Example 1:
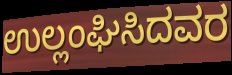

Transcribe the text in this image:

ಉಲ್ಲಂಘಿಸಿದವರ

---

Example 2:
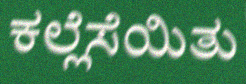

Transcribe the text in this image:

ಕಲ್ಲೆಸೆಯಿತು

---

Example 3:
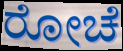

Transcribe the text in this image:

ರೋಚೆ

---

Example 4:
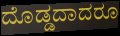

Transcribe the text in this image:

ದೊಡ್ಡದಾದರೂ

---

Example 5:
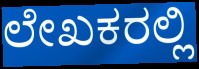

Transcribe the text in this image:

ಲೇಖಕರಲ್ಲಿ